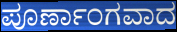
ಪೂರ್ಣಾಂಗವಾದ